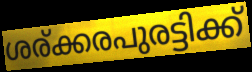
ശര്ക്കരപുരട്ടിക്ക്